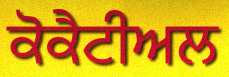
ਕੋਕੈਟੀਅਲ